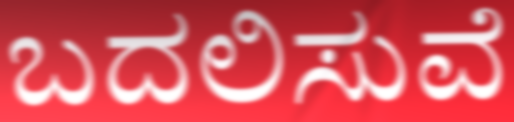
ಬದಲಿಸುವೆ